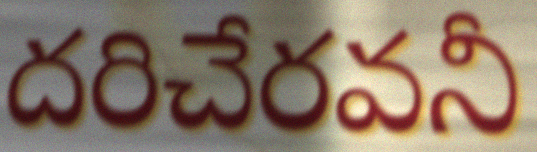
దరిచేరవనీ